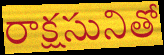
రాక్షసునితో